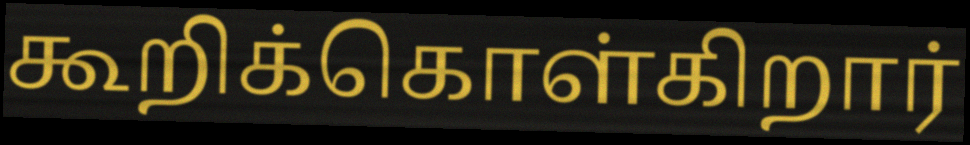
கூறிக்கொள்கிறார்